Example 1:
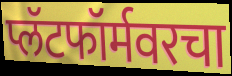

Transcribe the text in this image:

प्लॅटफॉर्मवरचा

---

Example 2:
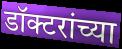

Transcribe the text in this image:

डॉक्‍टरांच्या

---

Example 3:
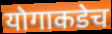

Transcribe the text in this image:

योगाकडेच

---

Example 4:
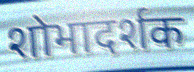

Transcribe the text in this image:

शोभादर्शक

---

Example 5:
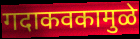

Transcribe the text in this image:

गदाकवकामुळे